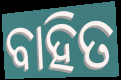
ବାହିତ